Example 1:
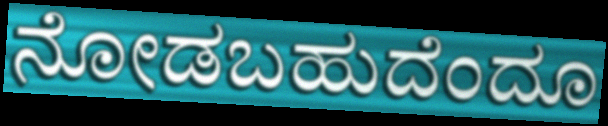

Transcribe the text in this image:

ನೋಡಬಹುದೆಂದೂ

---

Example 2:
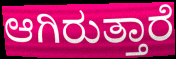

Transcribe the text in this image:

ಆಗಿರುತ್ತಾರೆ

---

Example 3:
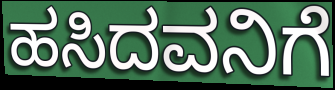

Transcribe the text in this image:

ಹಸಿದವನಿಗೆ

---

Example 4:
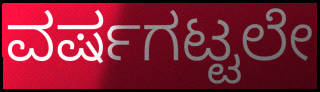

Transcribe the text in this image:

ವರ್ಷಗಟ್ಟಲೇ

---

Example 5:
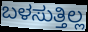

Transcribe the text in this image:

ಬಳಸುತ್ತಿಲ್ಲ